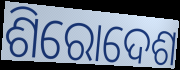
ଶିରୋଦେଶ